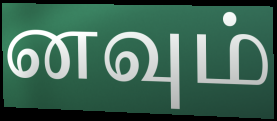
னவும்